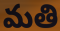
మతి